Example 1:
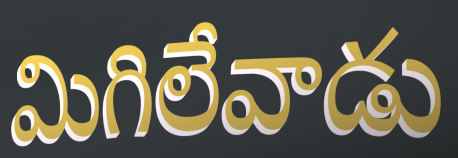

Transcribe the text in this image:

మిగిలేవాడు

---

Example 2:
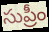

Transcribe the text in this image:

సుప్రీం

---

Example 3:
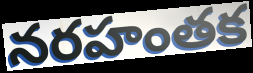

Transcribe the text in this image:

నరహంతక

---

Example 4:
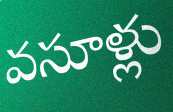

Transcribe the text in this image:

వసూళ్లు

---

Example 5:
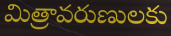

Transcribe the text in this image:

మిత్రావరుణులకు